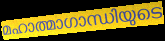
മഹാത്മാഗാന്ധിയുടെ